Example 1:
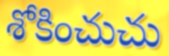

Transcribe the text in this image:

శోకించుచు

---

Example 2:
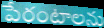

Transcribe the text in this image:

పేరంటాలను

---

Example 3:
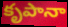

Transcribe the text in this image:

కృపానా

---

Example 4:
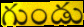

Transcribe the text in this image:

గుండు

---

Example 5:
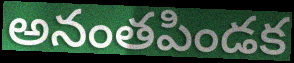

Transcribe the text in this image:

అనంతపిండక